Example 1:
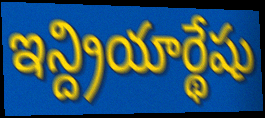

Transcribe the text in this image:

ఇన్ద్రియార్థేషు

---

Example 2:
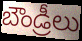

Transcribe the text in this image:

బౌండ్రీలు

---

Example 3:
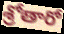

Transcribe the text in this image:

శ్రోతారో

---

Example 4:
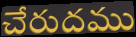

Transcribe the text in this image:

చేరుదము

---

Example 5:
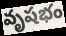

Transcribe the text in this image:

వృషభం